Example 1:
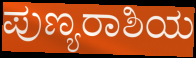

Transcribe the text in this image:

ಪುಣ್ಯರಾಶಿಯ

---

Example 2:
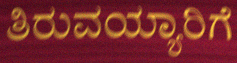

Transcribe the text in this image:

ತಿರುವಯ್ಯಾರಿಗೆ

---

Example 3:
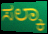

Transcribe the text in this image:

ಸಲ್ಕಾ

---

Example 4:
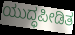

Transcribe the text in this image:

ಯುದ್ಧಪೀಡಿತ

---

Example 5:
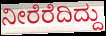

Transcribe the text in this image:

ನೀರೆರೆದಿದ್ದು